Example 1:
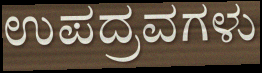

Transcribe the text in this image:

ಉಪದ್ರವಗಳು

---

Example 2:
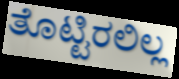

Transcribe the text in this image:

ತೊಟ್ಟಿರಲಿಲ್ಲ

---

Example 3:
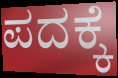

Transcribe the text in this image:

ಪದಕ್ಕೆ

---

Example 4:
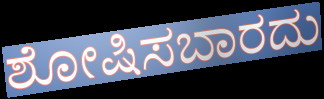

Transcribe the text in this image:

ಶೋಷಿಸಬಾರದು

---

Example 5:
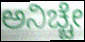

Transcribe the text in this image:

ಅನಿಚ್ಚೇ